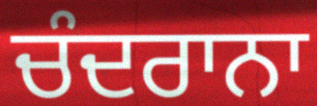
ਚੰਦਰਾਨਾ